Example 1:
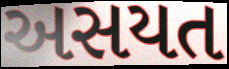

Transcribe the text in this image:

અસયત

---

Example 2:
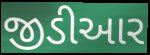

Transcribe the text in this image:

જીડીઆર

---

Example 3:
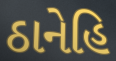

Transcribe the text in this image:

ઠાનેહિ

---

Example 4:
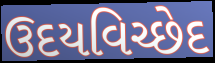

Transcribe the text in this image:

ઉદયવિચ્છેદ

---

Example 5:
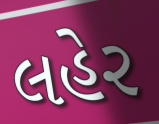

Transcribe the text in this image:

લહેર